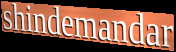
shindemandar